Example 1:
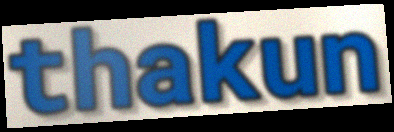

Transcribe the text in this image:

thakun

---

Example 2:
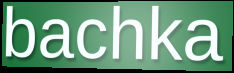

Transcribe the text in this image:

bachka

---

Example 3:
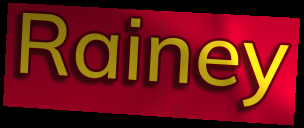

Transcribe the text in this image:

Rainey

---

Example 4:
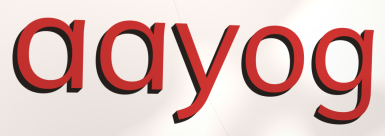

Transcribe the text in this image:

aayog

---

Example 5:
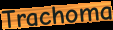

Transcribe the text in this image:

Trachoma